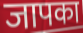
जापका